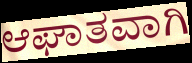
ಆಘಾತವಾಗಿ